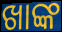
ଖାଙ୍କ